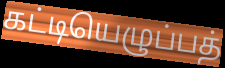
கட்டியெழுப்பத்